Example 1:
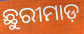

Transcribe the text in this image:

ଛୁରୀମାଡ଼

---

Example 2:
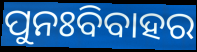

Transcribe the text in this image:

ପୁନଃବିବାହର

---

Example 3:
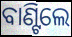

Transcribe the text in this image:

ବାଣ୍ଟିଲେ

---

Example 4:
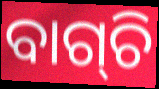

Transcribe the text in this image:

ବାଗ୍‌ଚି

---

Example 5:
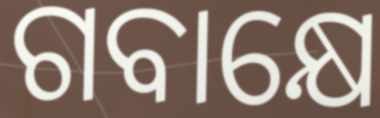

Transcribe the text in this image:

ଗବାକ୍ଷେ